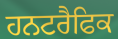
ਹਨਟਰੈਫਿਕ